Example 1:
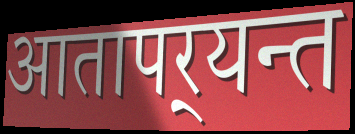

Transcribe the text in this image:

आतापर्यन्त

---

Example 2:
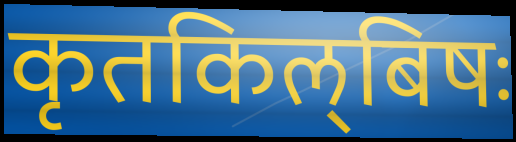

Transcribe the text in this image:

कृतकिल्बिषः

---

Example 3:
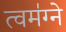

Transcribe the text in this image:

त्वम॑ग्ने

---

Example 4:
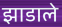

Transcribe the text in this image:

झाडाले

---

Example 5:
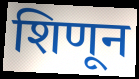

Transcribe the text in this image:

शिणून